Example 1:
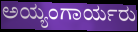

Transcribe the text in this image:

ಅಯ್ಯಂಗಾರ್ಯರು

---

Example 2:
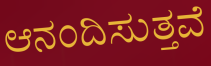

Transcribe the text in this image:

ಆನಂದಿಸುತ್ತವೆ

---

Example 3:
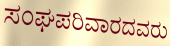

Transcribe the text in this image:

ಸಂಘಪರಿವಾರದವರು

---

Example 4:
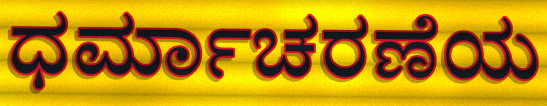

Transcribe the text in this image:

ಧರ್ಮಾಚರಣೆಯ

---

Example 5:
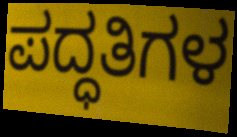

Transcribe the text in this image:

ಪದ್ಧತಿಗಳ